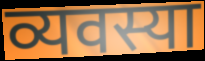
व्यवस्या